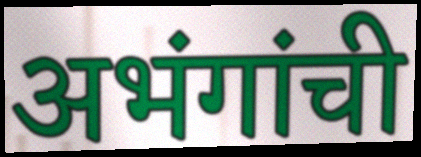
अभंगांची